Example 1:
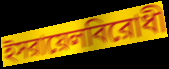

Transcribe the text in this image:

ইসরায়েলবিরোধী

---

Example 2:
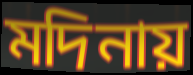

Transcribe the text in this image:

মদিনায়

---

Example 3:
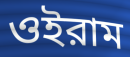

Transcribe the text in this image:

ওইরাম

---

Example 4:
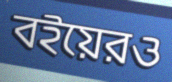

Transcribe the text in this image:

বইয়েরও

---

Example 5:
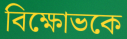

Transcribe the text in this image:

বিক্ষোভকে